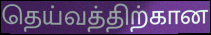
தெய்வத்திற்கான